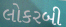
લોકરબી